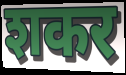
शकर